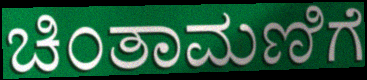
ಚಿಂತಾಮಣಿಗೆ